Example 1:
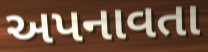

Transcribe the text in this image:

અપનાવતા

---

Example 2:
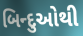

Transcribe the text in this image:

બિન્દુઓથી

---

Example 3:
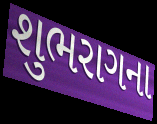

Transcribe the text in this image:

શુભરાગના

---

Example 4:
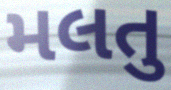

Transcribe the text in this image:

મલતુ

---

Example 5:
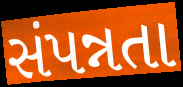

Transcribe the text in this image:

સંપન્નતા